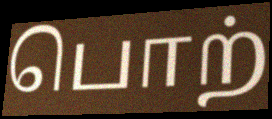
பொற்